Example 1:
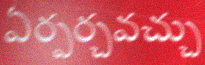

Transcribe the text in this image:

ఏర్పర్చవచ్చు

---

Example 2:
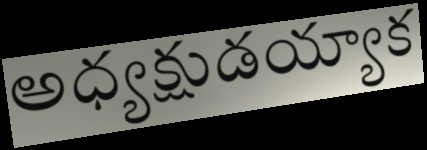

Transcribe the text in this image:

అధ్యక్షుడయ్యాక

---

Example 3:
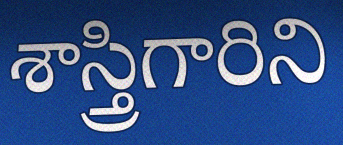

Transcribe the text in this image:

శాస్త్రిగారిని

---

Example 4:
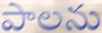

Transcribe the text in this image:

పాలను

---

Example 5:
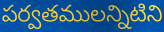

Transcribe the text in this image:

పర్వతములన్నిటిని